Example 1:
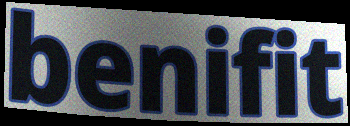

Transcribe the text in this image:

benifit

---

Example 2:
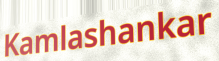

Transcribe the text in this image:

Kamlashankar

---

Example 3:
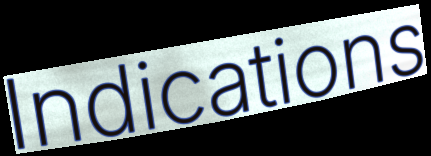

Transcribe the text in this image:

Indications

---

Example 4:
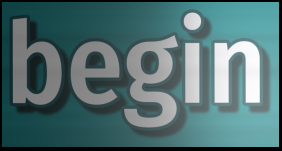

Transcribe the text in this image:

begin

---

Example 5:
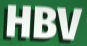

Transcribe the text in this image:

HBV